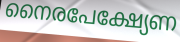
നൈരപേക്ഷ്യേണ